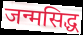
जन्मसिद्ध